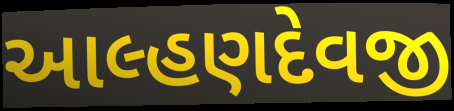
આલ્હણદેવજી